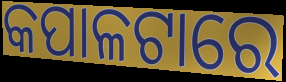
କପାଳଟାରେ